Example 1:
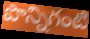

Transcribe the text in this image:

పొన్నిగంటి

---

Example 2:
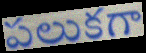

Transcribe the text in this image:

పలుకగా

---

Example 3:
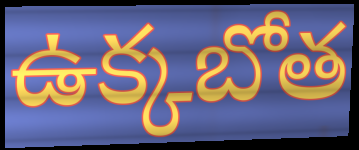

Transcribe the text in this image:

ఉక్కబోత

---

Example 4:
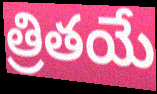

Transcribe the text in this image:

త్రితయే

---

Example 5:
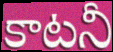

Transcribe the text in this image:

కాటనీ